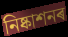
নিষ্কাশনৰ